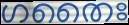
ഗതൈഃ